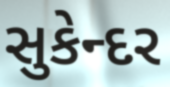
સુકેન્દર